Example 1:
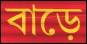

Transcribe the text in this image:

বাড়ে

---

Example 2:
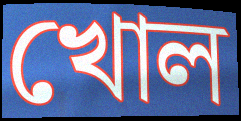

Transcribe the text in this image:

খোল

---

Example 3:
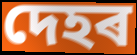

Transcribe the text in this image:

দেহৰ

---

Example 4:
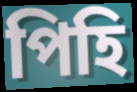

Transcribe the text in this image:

পিহি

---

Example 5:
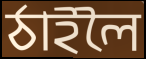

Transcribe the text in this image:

ঠাইলৈ